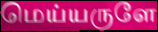
மெய்யருளே